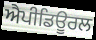
ਐਪੀਡਿਊਰਲ